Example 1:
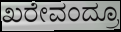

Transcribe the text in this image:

ಖರೇವಂದ್ರೂ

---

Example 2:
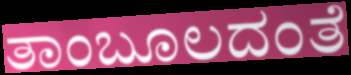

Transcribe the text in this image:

ತಾಂಬೂಲದಂತೆ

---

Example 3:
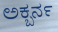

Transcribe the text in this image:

ಅಕ್ಬರ್ನ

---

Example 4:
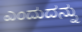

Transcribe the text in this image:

ಎಂದುದನ್ನು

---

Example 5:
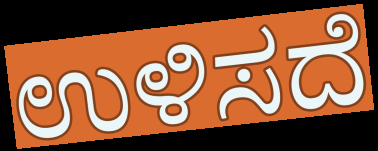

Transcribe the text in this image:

ಉಳಿಸದೆ